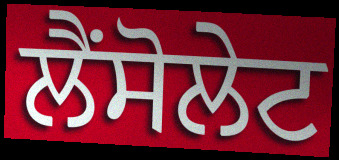
ਲੈਂਸੋਲੇਟ